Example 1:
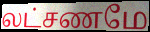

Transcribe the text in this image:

லட்சணமே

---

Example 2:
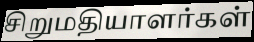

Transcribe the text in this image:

சிறுமதியாளர்கள்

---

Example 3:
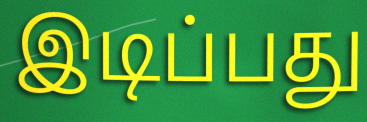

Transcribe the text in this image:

இடிப்பது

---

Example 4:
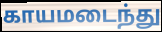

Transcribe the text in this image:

காயமடைந்து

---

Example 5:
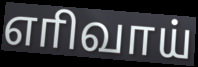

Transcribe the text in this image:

எரிவாய்